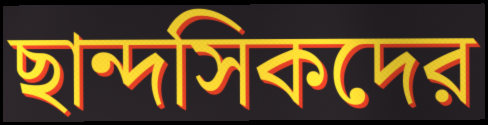
ছান্দসিকদের